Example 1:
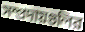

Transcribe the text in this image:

সম্প্রদায়গুলির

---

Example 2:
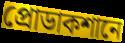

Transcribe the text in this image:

প্রোডাকশানে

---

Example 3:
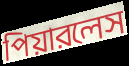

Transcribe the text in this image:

পিয়ারলেস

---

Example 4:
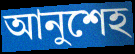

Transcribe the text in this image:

আনুশেহ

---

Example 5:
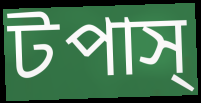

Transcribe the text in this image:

টপাস্